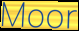
Moor